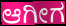
ಆಗೀಗ